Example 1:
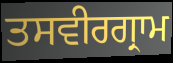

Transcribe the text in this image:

ਤਸਵੀਰਗ੍ਰਾਮ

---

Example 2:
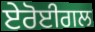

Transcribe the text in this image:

ਏਰੋਈਗਲ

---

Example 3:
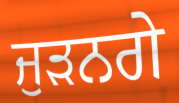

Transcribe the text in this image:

ਜੁਡ਼ਨਗੇ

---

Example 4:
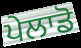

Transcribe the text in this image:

ਪੇਲਾਡੋ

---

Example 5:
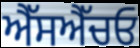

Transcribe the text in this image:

ਐੱਸਐੱਚਓ